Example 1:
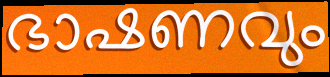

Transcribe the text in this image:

ഭാഷണവും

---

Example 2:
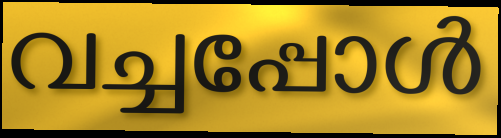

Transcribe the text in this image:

വച്ചപ്പോൾ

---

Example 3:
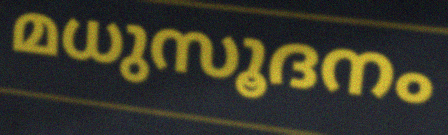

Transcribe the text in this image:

മധുസൂദനം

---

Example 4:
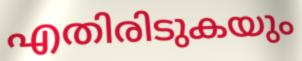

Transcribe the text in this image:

എതിരിടുകയും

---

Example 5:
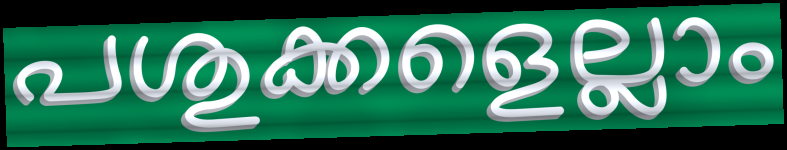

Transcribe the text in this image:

പശുക്കളെല്ലാം